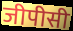
जीपीसी